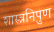
शास्त्रनिपुण